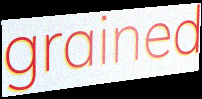
grained